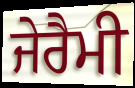
ਜੇਰੈਮੀ